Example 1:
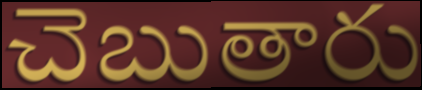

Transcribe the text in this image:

చెబుతారు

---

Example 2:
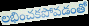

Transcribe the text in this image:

లభించకపోవడంతో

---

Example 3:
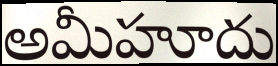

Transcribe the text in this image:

అమీహూదు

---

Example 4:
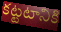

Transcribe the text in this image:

కట్టటానికి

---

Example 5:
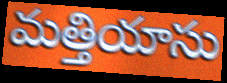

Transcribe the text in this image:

మత్తియాసు